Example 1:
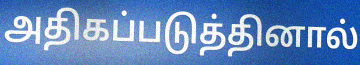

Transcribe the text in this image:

அதிகப்படுத்தினால்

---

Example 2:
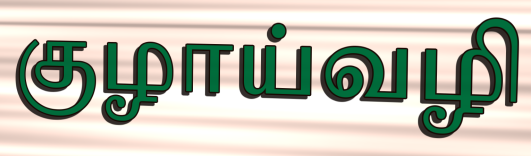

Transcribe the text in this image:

குழாய்வழி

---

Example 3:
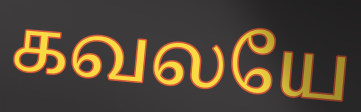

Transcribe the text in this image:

கவலயே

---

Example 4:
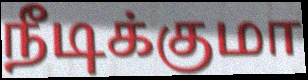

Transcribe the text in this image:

நீடிக்குமா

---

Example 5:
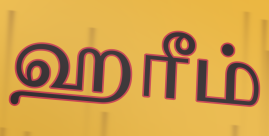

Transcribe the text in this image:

ஹரீம்